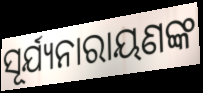
ସୂର୍ଯ୍ୟନାରାୟଣଙ୍କ